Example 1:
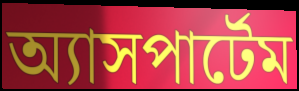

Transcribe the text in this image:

অ্যাসপার্টেম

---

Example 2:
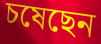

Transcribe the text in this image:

চষেছেন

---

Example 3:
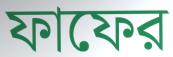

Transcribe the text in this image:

ফাফের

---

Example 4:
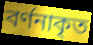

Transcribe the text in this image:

বর্ণনাকৃত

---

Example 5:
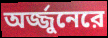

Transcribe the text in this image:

অর্জ্জুনেরে